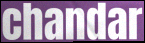
chandar